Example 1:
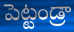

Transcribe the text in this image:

పెట్టండ్రా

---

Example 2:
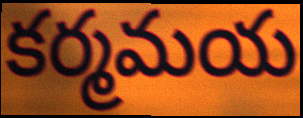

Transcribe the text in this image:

కర్మమయ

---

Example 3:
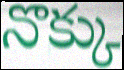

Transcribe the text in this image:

నొక్కు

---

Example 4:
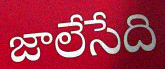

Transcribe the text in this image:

జాలేసేది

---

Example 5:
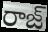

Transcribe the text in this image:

రాజ్